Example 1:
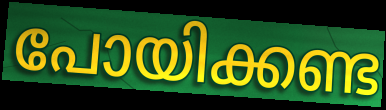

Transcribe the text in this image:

പോയിക്കണ്ട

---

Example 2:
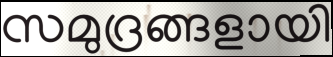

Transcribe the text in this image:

സമുദ്രങ്ങളായി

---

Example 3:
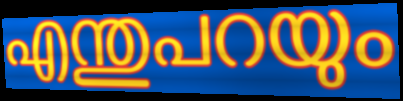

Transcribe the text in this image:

എന്തുപറയും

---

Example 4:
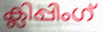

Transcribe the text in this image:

ക്ലിപ്പിംഗ്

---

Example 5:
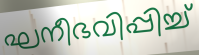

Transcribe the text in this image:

ഘനീഭവിപ്പിച്ച്